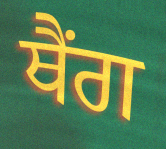
ਥੈਂਗ